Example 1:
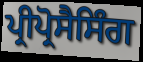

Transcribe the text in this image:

ਪ੍ਰੀਪ੍ਰੋਸੈਸਿੰਗ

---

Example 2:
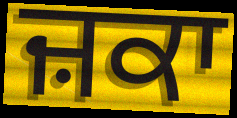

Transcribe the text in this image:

ਜ਼ਕਾ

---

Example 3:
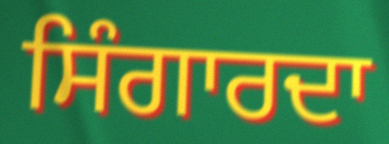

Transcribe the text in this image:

ਸਿੰਗਾਰਦਾ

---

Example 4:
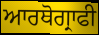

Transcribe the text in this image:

ਆਰਥੋਗ੍ਰਾਫੀ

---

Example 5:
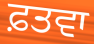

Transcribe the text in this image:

ਫ਼ਤਵਾ